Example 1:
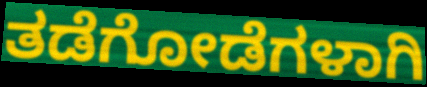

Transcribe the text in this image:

ತಡೆಗೋಡೆಗಳಾಗಿ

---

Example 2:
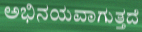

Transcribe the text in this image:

ಅಭಿನಯವಾಗುತ್ತದೆ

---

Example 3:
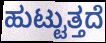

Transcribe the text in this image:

ಹುಟ್ಟುತ್ತದೆ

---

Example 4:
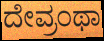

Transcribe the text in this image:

ದೇವ್ರಂಥಾ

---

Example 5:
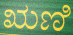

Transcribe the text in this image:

ಋಣಿ